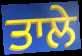
ਤਾਲੇ